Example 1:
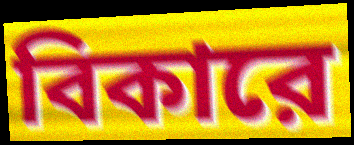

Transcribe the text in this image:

বিকারে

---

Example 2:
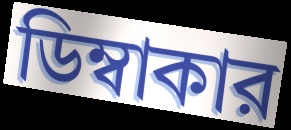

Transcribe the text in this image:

ডিম্বাকার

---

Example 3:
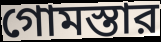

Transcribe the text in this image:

গোমস্তার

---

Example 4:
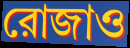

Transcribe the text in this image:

রোজাও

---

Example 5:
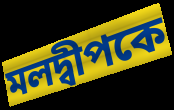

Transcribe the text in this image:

মলদ্বীপকে